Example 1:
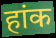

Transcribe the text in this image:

हांक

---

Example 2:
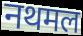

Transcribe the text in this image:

नथमल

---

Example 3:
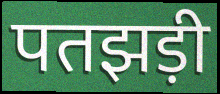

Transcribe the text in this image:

पतझड़ी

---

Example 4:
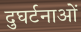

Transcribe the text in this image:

दुघर्टनाओं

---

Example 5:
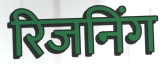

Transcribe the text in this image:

रिजनिंग